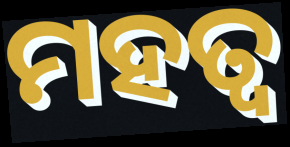
ମହତ୍ବ